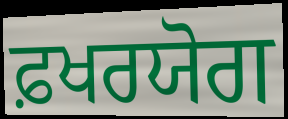
ਫ਼ਖਰਯੋਗ